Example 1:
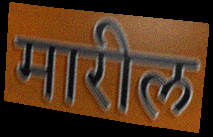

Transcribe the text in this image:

मारील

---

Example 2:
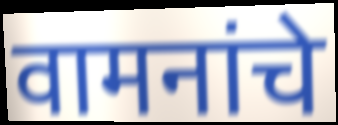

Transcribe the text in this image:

वामनांचे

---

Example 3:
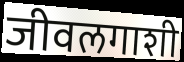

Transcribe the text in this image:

जीवलगाशी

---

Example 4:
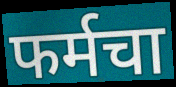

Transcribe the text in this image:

फर्मचा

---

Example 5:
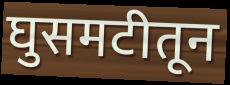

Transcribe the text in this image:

घुसमटीतून